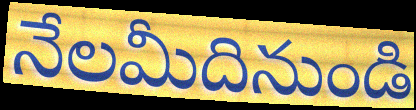
నేలమీదినుండి